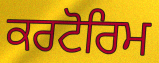
ਕਰਟੋਰਿਮ